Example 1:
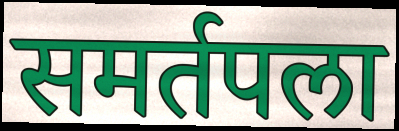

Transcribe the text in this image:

समर्तपला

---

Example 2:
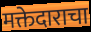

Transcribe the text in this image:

मक्तेदाराचा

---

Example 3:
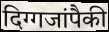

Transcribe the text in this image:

दिग्गजांपैकी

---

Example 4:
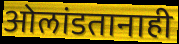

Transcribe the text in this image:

ओलांडतानाही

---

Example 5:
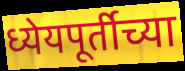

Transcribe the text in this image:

ध्येयपूर्तीच्या